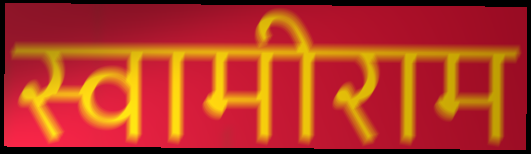
स्वामीराम